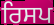
ਰਿਸਪ